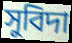
সুবিদা